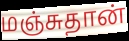
மஞ்சுதான்